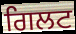
ਗਿਲਟ